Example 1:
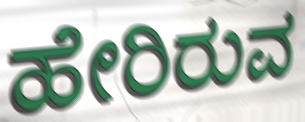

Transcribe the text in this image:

ಹೇರಿರುವ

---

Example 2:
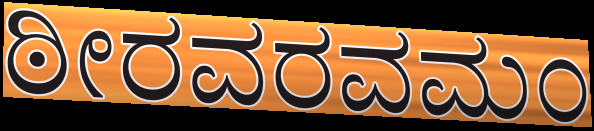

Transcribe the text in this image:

ಠೀರವರವಮಂ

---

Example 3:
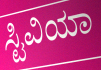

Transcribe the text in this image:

ಸ್ಟಿವಿಯಾ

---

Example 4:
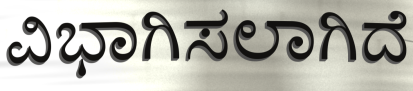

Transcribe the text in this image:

ವಿಭಾಗಿಸಲಾಗಿದೆ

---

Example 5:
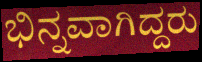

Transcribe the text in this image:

ಭಿನ್ನವಾಗಿದ್ದರು